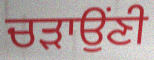
ਚੜਾਉਂਣੀ